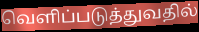
வெளிப்படுத்துவதில்